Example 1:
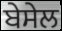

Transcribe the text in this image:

ਬੇਸੇਲ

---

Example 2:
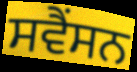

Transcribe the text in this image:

ਸਵੈਂਸਨ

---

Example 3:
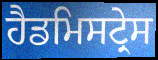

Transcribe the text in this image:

ਹੈਡਮਿਸਟ੍ਰੇਸ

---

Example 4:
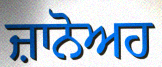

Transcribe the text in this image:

ਜ਼ਾਨੋਅਹ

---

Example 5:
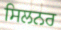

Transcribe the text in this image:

ਸਿਲਨਰ